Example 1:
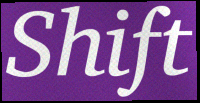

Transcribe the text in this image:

Shift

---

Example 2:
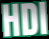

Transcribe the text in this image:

HDI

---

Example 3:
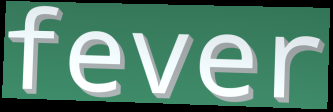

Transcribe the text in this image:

fever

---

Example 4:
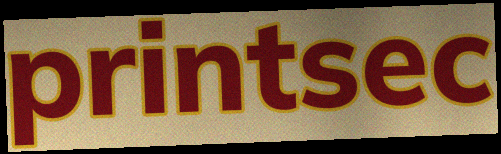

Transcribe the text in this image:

printsec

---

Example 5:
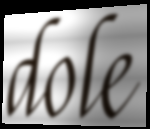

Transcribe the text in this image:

dole